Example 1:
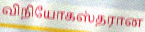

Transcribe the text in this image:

விநியோகஸ்தரான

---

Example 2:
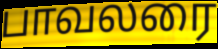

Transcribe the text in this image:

பாவலரை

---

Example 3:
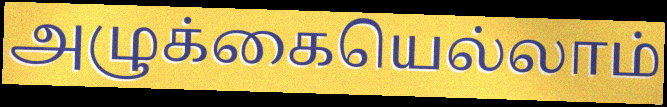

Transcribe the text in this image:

அழுக்கையெல்லாம்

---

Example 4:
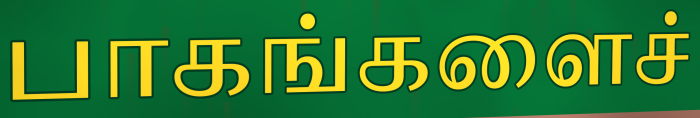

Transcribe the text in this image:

பாகங்களைச்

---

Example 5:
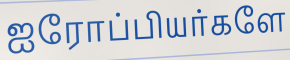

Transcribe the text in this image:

ஐரோப்பியர்களே